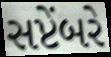
સપ્ટેંબરે